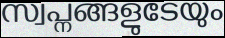
സ്വപ്നങ്ങളുടേയും